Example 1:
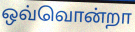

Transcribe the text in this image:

ஒவ்வொன்றா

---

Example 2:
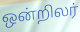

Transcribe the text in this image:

ஒன்றிலர்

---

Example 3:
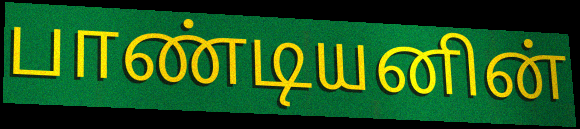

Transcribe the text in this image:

பாண்டியனின்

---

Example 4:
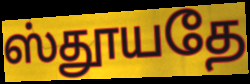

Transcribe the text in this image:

ஸ்தூயதே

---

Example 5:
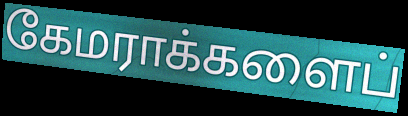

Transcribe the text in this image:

கேமராக்களைப்